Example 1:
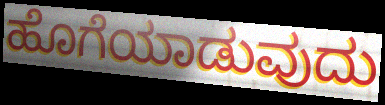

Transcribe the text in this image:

ಹೊಗೆಯಾಡುವುದು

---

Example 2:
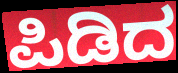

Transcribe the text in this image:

ಪಿಡಿದ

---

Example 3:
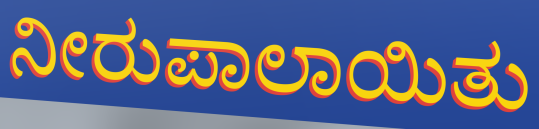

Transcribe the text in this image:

ನೀರುಪಾಲಾಯಿತು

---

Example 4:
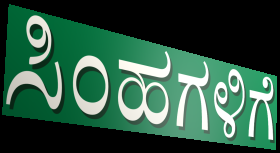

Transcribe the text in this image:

ಸಿಂಹಗಳಿಗೆ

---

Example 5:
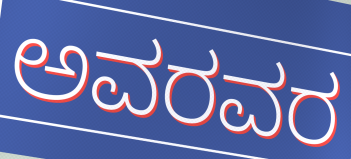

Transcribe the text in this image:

ಅವರವರ